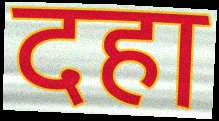
दहा